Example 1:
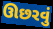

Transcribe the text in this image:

ઊછરવું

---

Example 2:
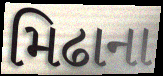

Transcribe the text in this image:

મિઢાના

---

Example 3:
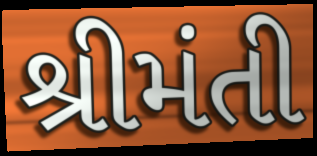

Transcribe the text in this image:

શ્રીમંતી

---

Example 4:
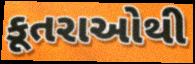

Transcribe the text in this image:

કૂતરાઓથી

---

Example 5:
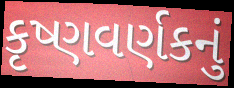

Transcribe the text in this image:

કૃષ્ણવર્ણકનું